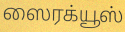
ஸைரக்யூஸ்